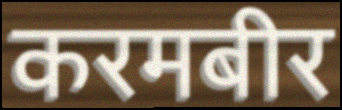
करमबीर